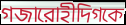
গজারোহীদিগকে